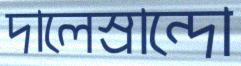
দালেস্রান্দো